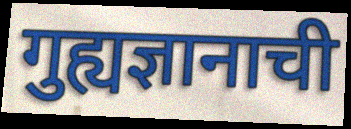
गुह्यज्ञानाची